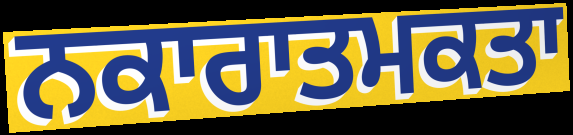
ਨਕਾਰਾਤਮਕਤਾ